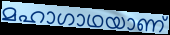
മഹാഗാഥയാണ്